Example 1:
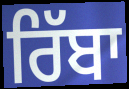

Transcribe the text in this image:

ਰਿੱਬਾ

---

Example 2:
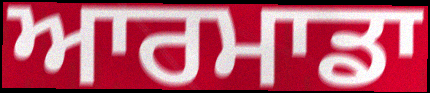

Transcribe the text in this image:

ਆਰਮਾਡਾ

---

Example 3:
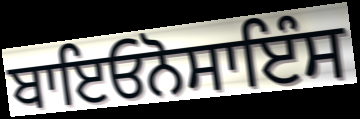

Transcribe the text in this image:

ਬਾਇਓਨੋਸਾਇੰਸ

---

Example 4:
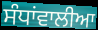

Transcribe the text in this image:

ਸੰਧਾਂਵਾਲੀਆ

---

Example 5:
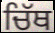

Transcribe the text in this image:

ਚਿੱਥ